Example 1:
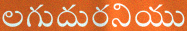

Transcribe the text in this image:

లగుదురనియు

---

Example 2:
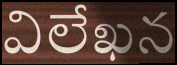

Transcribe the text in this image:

విలేఖన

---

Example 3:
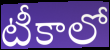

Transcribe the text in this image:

టీకాలో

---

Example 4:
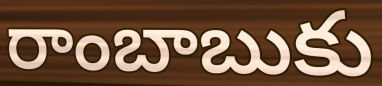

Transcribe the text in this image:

రాంబాబుకు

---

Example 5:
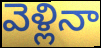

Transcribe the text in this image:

వెళ్లినా